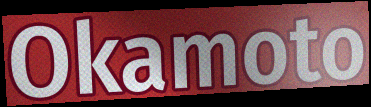
Okamoto